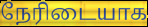
நேரிடையாக